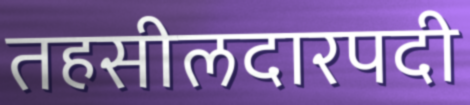
तहसीलदारपदी